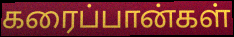
கரைப்பான்கள்